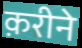
क़रीने